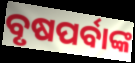
ବୃଷପର୍ବାଙ୍କ